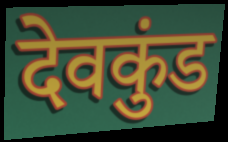
देवकुंड